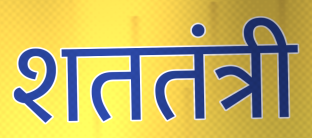
शततंत्री